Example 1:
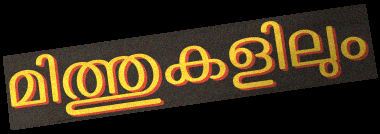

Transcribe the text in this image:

മിത്തുകളിലും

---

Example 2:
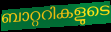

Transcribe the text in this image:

ബാറ്ററികളുടെ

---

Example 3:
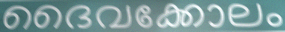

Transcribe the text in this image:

ദൈവക്കോലം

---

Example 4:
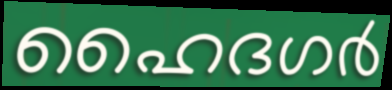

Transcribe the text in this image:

ഹൈദഗർ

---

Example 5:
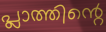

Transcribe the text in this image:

പ്ലാത്തിന്റെ